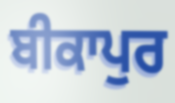
ਬੀਕਾਪੁਰ